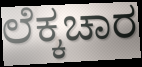
ಲೆಕ್ಕಚಾರ